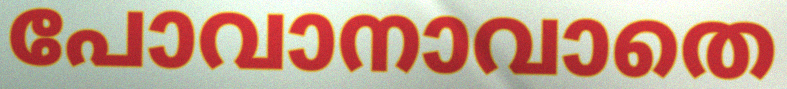
പോവാനാവാതെ